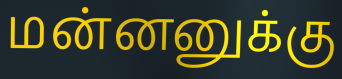
மன்னனுக்கு